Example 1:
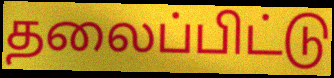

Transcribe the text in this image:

தலைப்பிட்டு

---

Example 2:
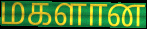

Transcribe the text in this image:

மகளான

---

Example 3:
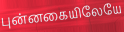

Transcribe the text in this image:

புன்னகையிலேயே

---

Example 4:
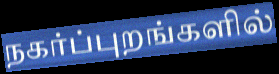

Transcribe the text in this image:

நகர்ப்புறங்களில்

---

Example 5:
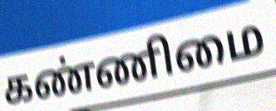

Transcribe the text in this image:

கண்ணிமை